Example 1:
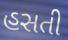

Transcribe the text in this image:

હસતી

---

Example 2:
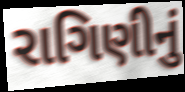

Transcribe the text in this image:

રાગિણીનું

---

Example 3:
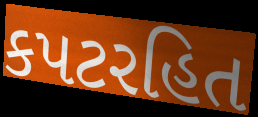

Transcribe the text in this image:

કપટરહિત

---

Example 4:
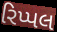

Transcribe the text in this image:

રિપ્પલ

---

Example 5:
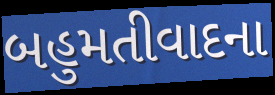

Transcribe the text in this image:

બહુમતીવાદના